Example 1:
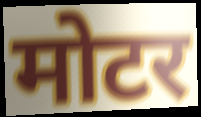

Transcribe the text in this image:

मोटर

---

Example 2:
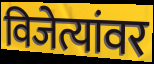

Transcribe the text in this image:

विजेत्यांवर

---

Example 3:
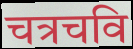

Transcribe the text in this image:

चत्रचवि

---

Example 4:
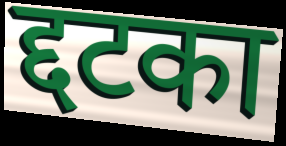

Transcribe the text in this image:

द्दटका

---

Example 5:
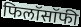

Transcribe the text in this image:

फिलॉसॉफी